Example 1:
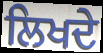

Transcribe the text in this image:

ਲਿਖਦੇ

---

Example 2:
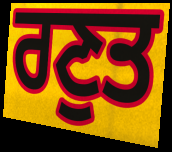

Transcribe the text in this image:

ਰਣੁਤ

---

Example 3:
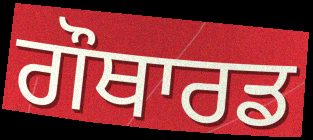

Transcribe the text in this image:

ਗੌਥਾਰਡ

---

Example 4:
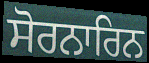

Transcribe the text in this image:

ਸੋਰਨਾਰਿਨ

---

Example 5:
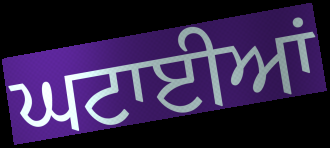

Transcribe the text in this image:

ਘਟਾਈਆਂ